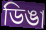
ডিঙা